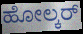
ಹೋಲ್ಕರ್